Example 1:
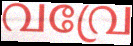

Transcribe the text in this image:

വവ്രേ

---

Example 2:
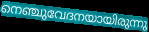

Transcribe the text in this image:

നെഞ്ചുവേദനയായിരുന്നു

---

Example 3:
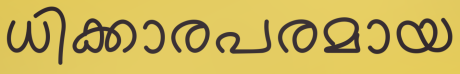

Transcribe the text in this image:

ധിക്കാരപരമായ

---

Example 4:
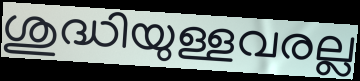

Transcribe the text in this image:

ശുദ്ധിയുള്ളവരല്ല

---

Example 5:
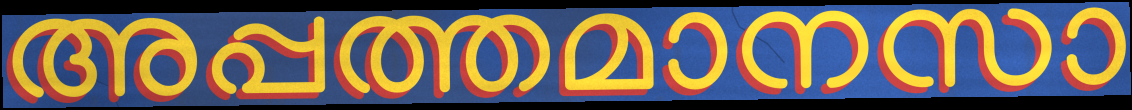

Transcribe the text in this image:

അപ്പത്തമാനസാ